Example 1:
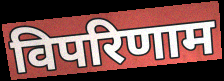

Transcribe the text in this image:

विपरिणाम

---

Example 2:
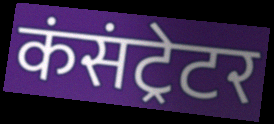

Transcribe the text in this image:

कंसंट्रेटर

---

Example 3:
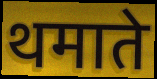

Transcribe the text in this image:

थमाते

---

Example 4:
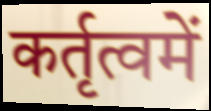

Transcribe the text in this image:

कर्तृत्वमें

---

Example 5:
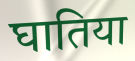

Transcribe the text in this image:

घातिया